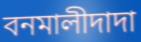
বনমালীদাদা